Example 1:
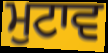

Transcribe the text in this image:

ਮੁਟਾਵ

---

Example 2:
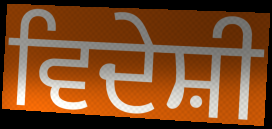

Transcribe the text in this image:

ਵਿਦੇਸ਼ੀ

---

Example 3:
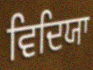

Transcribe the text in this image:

ਵਿਦਿਯਾ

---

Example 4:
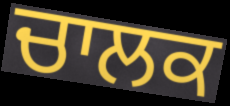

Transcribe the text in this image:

ਚਾਲਕ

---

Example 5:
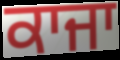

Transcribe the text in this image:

ਕਾਜਾ